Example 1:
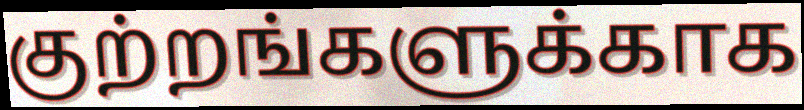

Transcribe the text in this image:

குற்றங்களுக்காக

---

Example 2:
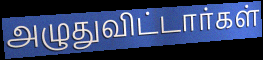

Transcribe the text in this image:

அழுதுவிட்டார்கள்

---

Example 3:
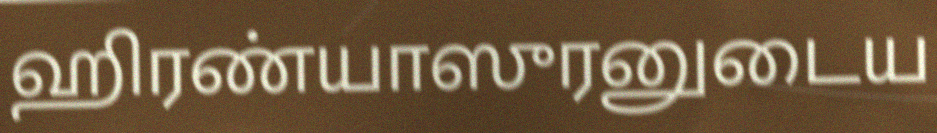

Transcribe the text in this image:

ஹிரண்யாஸுரனுடைய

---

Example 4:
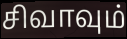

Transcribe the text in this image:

சிவாவும்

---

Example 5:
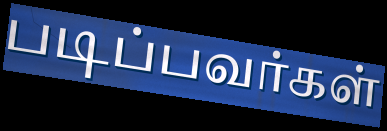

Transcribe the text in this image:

படிப்பவர்கள்